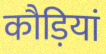
कौड़ियां